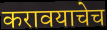
करावयाचेच